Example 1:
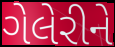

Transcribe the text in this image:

ગેલેરીને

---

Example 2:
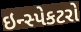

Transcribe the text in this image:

ઇન્સ્પેકટરો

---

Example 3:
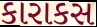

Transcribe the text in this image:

કારાકસ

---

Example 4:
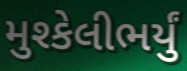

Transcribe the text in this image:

મુશ્કેલીભર્યું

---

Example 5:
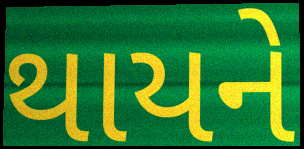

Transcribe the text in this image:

થાયને